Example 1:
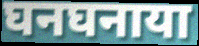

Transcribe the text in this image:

घनघनाया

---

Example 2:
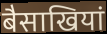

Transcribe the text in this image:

बैसाखियां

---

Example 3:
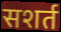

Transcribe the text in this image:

सशर्त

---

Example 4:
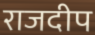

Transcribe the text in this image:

राजदीप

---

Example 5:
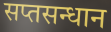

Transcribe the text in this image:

सप्तसन्धान